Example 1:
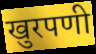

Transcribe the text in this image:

खुरपणी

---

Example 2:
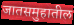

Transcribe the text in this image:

जातसमुहातील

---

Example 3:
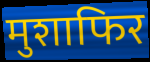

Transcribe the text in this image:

मुशाफिर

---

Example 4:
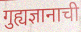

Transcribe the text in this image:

गुह्यज्ञानाची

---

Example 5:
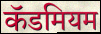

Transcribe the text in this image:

कॅडमियम